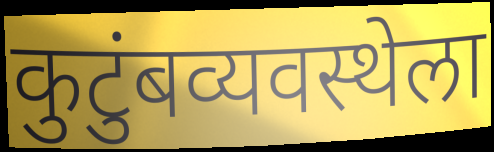
कुटुंबव्यवस्थेला